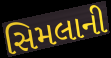
સિમલાની